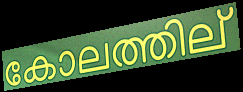
കോലത്തില്